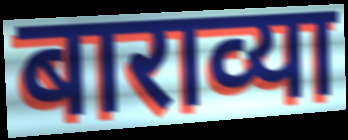
बाराव्या